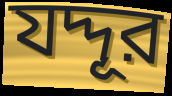
যদ্দূর